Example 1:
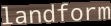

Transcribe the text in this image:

landform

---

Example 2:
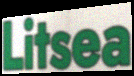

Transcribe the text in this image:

Litsea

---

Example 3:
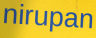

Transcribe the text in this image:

nirupan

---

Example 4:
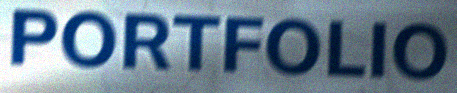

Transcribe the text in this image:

PORTFOLIO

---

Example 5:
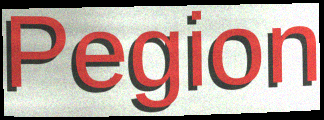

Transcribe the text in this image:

Pegion